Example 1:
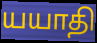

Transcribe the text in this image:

யயாதி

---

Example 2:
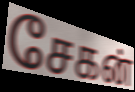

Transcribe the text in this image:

சேகன்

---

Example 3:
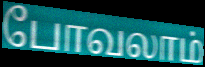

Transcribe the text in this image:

போவலாம்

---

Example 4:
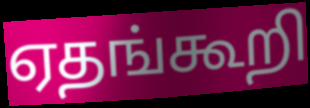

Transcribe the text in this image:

ஏதங்கூறி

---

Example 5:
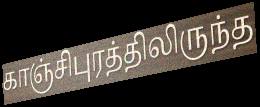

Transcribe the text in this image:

காஞ்சிபுரத்திலிருந்த